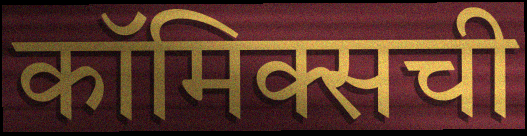
कॉमिक्सची